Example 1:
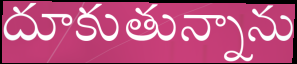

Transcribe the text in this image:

దూకుతున్నాను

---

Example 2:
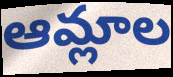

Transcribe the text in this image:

ఆమ్లాల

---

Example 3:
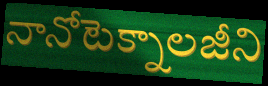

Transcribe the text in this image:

నానోటెక్నాలజీని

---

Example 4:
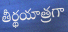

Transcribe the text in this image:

తీర్థయాత్రగా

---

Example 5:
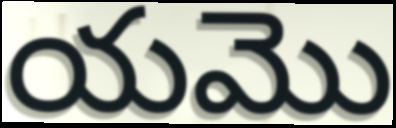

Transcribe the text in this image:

యమొ